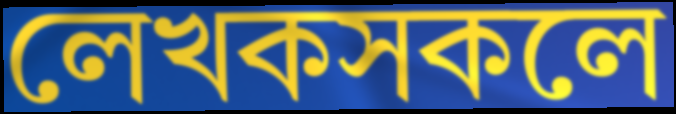
লেখকসকলে